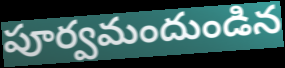
పూర్వమందుండిన